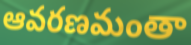
ఆవరణమంతా